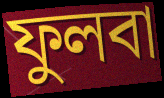
ফুলবা